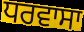
ਧਰਵਾਸਾ